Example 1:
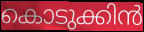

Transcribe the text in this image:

കൊടുക്കിൻ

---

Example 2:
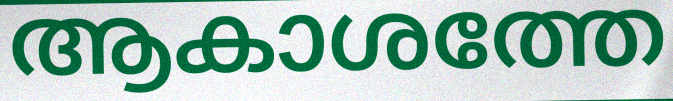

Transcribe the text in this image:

ആകാശത്തേ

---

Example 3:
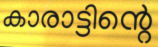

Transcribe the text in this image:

കാരാട്ടിന്റെ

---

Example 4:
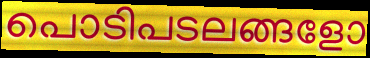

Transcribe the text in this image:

പൊടിപടലങ്ങളോ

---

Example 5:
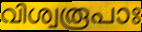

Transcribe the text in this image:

വിശ്വരൂപാഃ